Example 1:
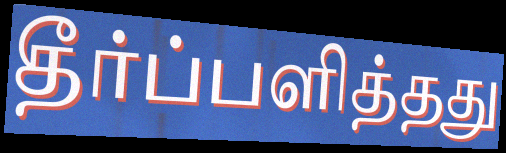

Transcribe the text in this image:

தீர்ப்பளித்தது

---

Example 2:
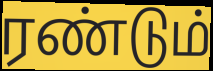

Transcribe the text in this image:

ரண்டும்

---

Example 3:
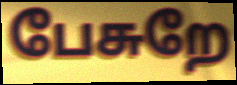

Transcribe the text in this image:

பேசுறே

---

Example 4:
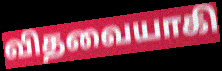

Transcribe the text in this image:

விதவையாகி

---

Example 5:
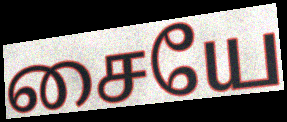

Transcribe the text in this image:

சையே